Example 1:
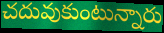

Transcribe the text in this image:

చదువుకుంటున్నారు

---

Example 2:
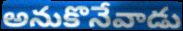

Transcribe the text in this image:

అనుకొనేవాడు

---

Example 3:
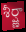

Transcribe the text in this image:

శీర్ష్ణా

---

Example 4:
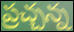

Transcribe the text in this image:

ప్రచ్చన్న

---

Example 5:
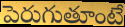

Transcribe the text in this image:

పెరుగుతూంటే